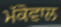
ਮੱਕੋਵਾਲ